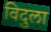
विदुला